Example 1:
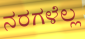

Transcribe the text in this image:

ನರಗಳೆಲ್ಲ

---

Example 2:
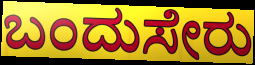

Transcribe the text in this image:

ಬಂದುಸೇರು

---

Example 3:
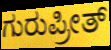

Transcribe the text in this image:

ಗುರುಪ್ರೀತ್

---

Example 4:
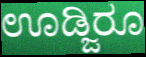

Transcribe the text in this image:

ಊಡ್ಜಿರೂ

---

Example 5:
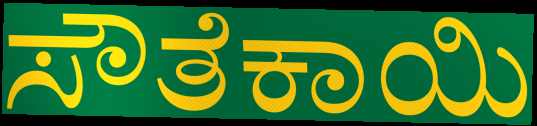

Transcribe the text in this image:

ಸೌತೆಕಾಯಿ